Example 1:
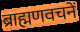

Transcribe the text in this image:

ब्राह्मणवचनें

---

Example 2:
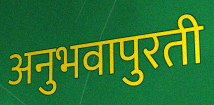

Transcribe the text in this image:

अनुभवापुरती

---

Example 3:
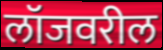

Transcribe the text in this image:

लॉजवरील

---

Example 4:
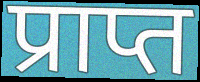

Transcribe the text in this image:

प्राप्त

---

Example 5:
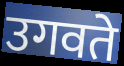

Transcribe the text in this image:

उगवते